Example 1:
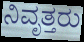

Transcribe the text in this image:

ನಿವೃತ್ತರು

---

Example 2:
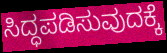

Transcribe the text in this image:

ಸಿದ್ಧಪಡಿಸುವುದಕ್ಕೆ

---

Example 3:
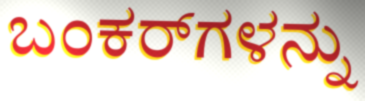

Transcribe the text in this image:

ಬಂಕರ್‌ಗಳನ್ನು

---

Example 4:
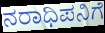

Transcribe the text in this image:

ನರಾಧಿಪನಿಗೆ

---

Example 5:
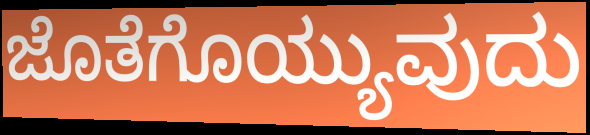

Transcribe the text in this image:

ಜೊತೆಗೊಯ್ಯುವುದು